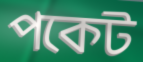
পকেট